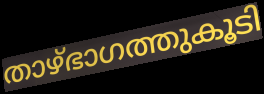
താഴ്ഭാഗത്തുകൂടി